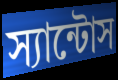
স্যান্টোস